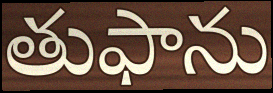
తుఫాను